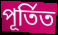
পূৰ্তিত